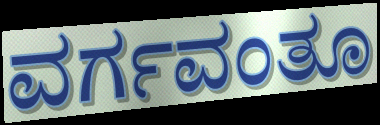
ವರ್ಗವಂತೂ